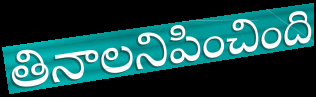
తినాలనిపించింది